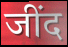
जींद